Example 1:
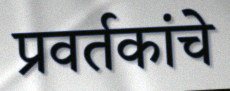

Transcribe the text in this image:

प्रवर्तकांचे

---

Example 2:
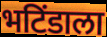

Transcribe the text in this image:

भटिंडाला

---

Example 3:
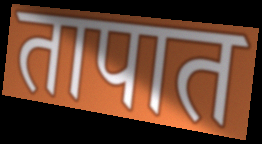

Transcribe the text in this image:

तापात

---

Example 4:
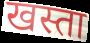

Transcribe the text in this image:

खस्ता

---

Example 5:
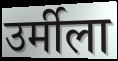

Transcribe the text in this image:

उर्मीला